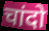
चांदो